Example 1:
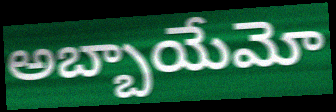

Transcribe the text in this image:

అబ్బాయేమో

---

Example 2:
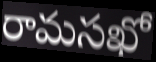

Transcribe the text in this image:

రామసఖో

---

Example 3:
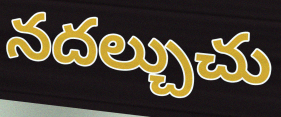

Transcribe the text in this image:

నదల్చుచు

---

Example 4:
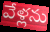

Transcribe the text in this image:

వేళ్లను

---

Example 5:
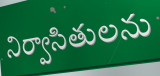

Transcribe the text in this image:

నిర్వాసితులను